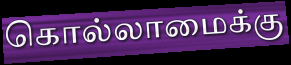
கொல்லாமைக்கு